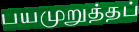
பயமுறுத்தப்